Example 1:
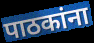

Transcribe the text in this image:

पाठकांना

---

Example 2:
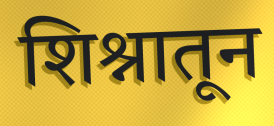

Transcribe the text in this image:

शिश्नातून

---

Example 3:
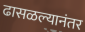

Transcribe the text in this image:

ढासळल्यानंतर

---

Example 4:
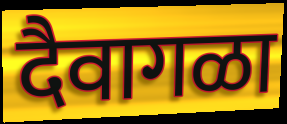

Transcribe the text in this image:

दैवागळा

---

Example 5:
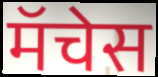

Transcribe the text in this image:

मॅचेस